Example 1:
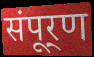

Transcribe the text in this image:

संपूर्ण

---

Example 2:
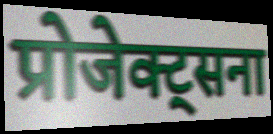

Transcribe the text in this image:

प्रोजेक्ट्सना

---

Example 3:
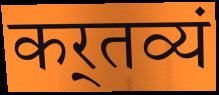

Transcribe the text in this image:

कर्तव्यं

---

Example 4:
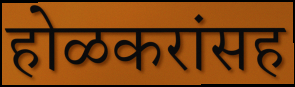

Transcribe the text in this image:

होळकरांसह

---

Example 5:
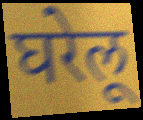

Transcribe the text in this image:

घरेलू